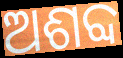
ଅଶବ୍ଦ